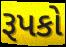
રૂપકો